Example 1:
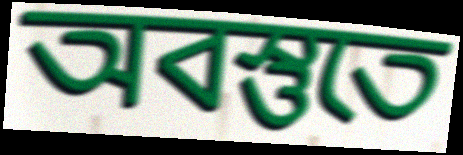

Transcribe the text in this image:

অবস্তুতে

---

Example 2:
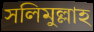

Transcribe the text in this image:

সলিমুল্লাহ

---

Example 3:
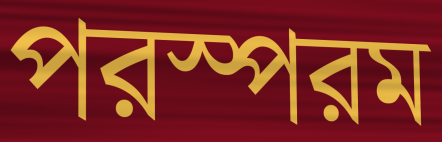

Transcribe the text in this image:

পরস্পরম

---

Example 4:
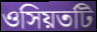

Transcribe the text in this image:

ওসিয়তটি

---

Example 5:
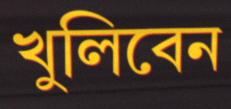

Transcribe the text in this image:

খুলিবেন